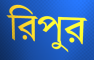
রিপুর